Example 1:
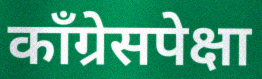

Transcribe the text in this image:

काँग्रेसपेक्षा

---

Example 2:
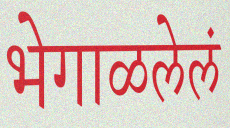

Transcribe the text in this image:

भेगाळलेलं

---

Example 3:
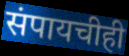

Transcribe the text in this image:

संपायचीही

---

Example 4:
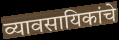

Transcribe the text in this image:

व्यावसायिकांचे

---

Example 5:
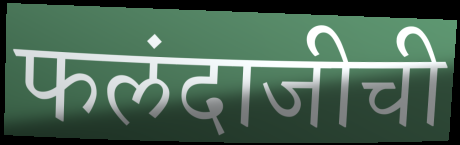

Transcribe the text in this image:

फलंदाजीची